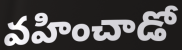
వహించాడో